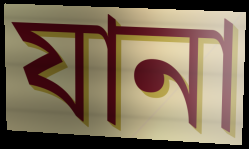
যানা